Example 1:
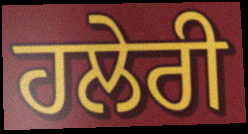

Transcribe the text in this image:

ਹਲੇਰੀ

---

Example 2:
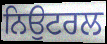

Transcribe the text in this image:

ਨਿਉਟਰਲ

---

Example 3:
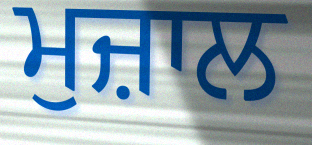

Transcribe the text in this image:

ਮੁਜ਼ਾਲ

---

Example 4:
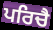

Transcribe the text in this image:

ਪਰਿਚੈ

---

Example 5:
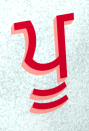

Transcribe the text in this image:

ਪੂ